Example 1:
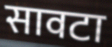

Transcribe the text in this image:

सावटा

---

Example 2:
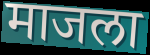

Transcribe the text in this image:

माजला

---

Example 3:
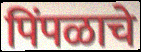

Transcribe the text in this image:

पिंपळाचे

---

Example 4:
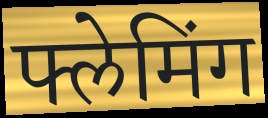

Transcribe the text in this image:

फ्लेमिंग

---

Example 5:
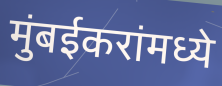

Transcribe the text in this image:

मुंबईकरांमध्ये